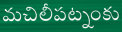
మచిలీపట్నంకు